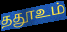
ததூஉம்